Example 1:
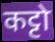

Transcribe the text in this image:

कट्टो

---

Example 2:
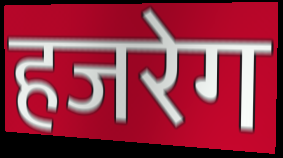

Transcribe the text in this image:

हजरेग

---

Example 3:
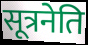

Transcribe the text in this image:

सूत्रनेति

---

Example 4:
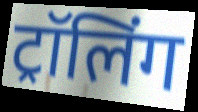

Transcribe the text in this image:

ट्रॉलिंग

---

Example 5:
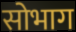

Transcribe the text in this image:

सोभाग